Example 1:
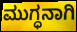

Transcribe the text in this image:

ಮುಗ್ಧನಾಗಿ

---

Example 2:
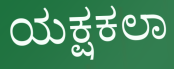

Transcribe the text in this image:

ಯಕ್ಷಕಲಾ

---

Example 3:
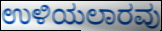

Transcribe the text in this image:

ಉಳಿಯಲಾರವು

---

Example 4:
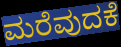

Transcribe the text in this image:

ಮರೆವುದಕೆ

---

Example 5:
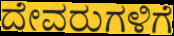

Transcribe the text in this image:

ದೇವರುಗಳಿಗೆ